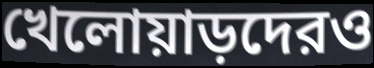
খেলোয়াড়দেরও